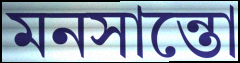
মনসান্তো